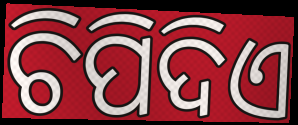
ଚିପିଦିଏ